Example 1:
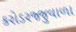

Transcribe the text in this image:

કરોડરજ્જુવાળા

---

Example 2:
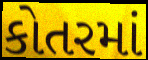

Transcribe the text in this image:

કોતરમાં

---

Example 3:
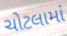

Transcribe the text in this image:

ચોટલામાં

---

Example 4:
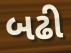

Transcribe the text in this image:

બઢી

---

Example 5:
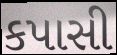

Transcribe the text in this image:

કપાસી